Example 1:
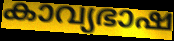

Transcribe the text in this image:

കാവ്യഭാഷ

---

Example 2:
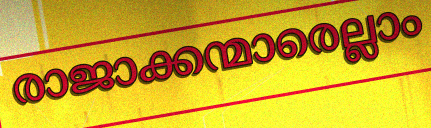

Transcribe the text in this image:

രാജാക്കന്മാരെല്ലാം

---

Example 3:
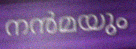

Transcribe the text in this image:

നൻമയും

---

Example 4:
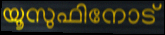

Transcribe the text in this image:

യൂസുഫിനോട്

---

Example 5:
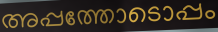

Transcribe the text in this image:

അപ്പത്തോടൊപ്പം